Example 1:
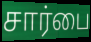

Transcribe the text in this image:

சார்பை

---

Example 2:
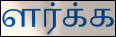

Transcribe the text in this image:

ளர்க்க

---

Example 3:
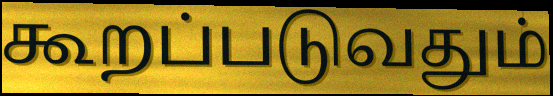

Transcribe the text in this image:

கூறப்படுவதும்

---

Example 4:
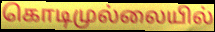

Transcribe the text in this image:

கொடிமுல்லையில்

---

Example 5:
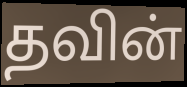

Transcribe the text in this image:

தவின்